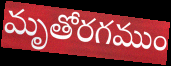
మృతోరగముం